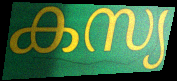
കസ്യ